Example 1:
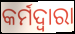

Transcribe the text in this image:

କର୍ମଦ୍ୱାରା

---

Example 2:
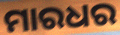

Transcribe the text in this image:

ମାରଧର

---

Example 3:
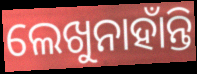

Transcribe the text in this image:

ଲେଖୁନାହାଁନ୍ତି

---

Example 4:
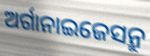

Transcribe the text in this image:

ଅର୍ଗାନାଇଜେସନ୍ରୁ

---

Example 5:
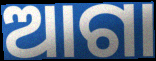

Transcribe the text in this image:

ଆଗା